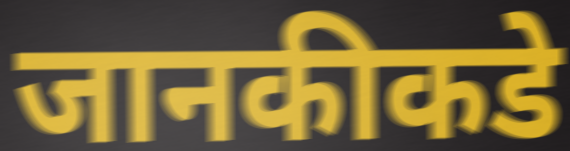
जानकीकडे